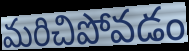
మరిచిపోవడం